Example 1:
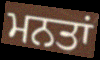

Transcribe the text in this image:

ਮਨਤਾਂ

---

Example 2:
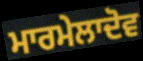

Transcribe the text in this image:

ਮਾਰਮੇਲਾਦੋਵ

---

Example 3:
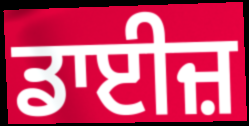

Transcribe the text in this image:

ਡਾਈਜ਼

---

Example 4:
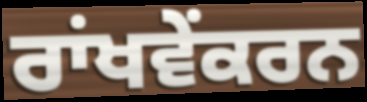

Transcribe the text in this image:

ਰਾਂਖਵੇਂਕਰਨ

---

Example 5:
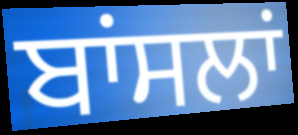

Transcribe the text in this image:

ਬਾਂਸਲਾਂ